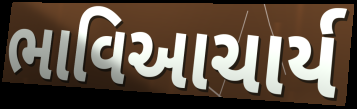
ભાવિઆચાર્ય